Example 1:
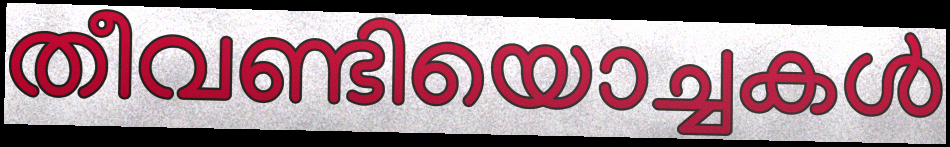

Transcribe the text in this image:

തീവണ്ടിയൊച്ചകൾ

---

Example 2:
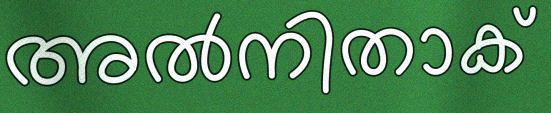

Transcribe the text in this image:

അൽനിതാക്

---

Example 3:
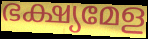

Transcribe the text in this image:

ഭക്ഷ്യമേള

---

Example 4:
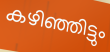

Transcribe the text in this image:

കഴിഞ്ഞിട്ടും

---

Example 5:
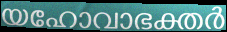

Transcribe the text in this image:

യഹോവാഭക്തർ